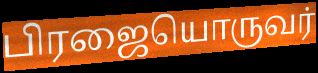
பிரஜையொருவர்